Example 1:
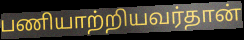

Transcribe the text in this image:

பணியாற்றியவர்தான்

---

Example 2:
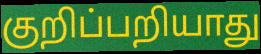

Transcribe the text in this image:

குறிப்பறியாது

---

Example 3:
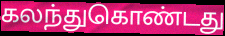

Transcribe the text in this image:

கலந்துகொண்டது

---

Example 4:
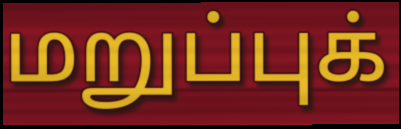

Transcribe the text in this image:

மறுப்புக்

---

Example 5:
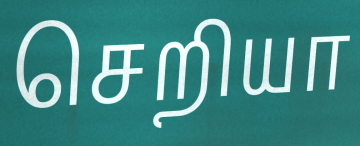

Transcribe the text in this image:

செறியா